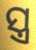
ସ୍ତ୍ର